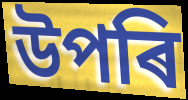
উপৰি